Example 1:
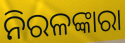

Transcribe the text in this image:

ନିରଳଙ୍କାରା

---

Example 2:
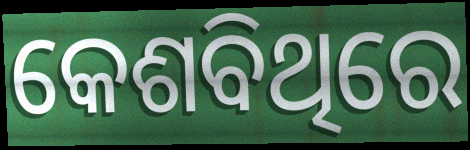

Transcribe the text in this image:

କେଶବିଥିରେ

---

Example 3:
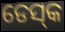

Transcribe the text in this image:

ଡେସ୍‌କ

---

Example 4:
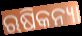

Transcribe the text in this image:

ଋଷିକନ୍ୟା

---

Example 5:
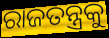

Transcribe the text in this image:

ରାଜତନ୍ତ୍ରକୁ